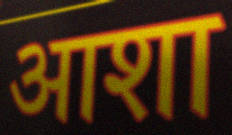
आशा